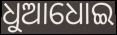
ଧୁଆଧୋଇ